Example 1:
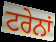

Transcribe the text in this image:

ਟਰੇਨਾਂ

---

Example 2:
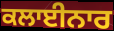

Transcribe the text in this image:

ਕਲਾਈਨਾਰ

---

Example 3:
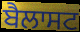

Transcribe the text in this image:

ਬੈਲਾਸਟ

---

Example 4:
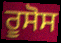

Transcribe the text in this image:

ਰੂਸੋਸ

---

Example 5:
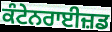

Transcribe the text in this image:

ਕੰਟੇਨਰਾਈਜ਼ਡ